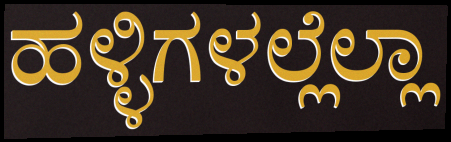
ಹಳ್ಳಿಗಳಲ್ಲೆಲ್ಲಾ